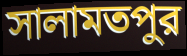
সালামতপুর